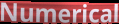
Numerical